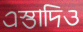
এস্তাদিও